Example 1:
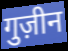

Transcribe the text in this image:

गुज़ीन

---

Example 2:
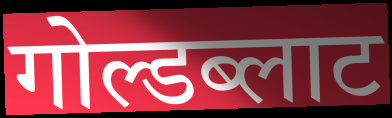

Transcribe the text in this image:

गोल्डब्लाट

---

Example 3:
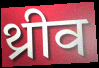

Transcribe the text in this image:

थ्रीव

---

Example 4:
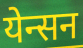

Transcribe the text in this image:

येन्सन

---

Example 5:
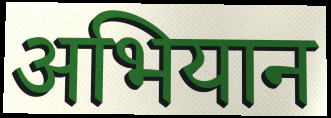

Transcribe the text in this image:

अभियान